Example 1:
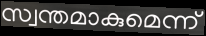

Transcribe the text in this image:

സ്വന്തമാകുമെന്ന്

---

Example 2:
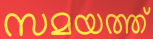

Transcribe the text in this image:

സമയത്ത്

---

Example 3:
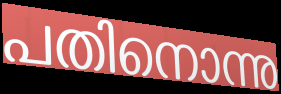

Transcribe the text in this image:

പതിനൊന്നു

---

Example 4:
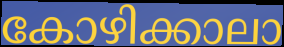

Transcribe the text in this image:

കോഴിക്കാലാ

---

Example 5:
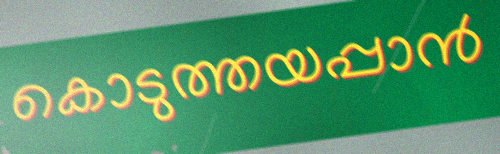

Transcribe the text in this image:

കൊടുത്തയപ്പാൻ